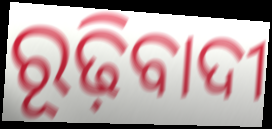
ରୂଢ଼ିବାଦୀ